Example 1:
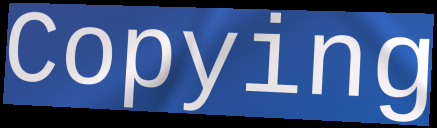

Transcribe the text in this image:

Copying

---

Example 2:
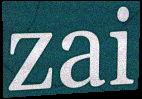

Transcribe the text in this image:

zai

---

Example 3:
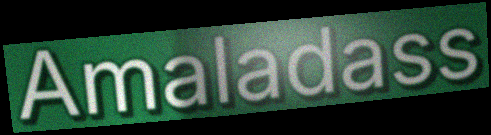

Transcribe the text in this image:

Amaladass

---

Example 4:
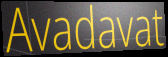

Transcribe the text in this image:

Avadavat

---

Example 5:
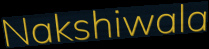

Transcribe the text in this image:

Nakshiwala